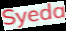
Syeda